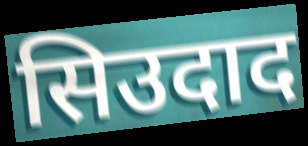
सिउदाद